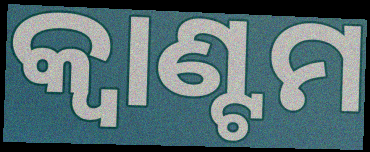
କ୍ୱାଣ୍ଟମ